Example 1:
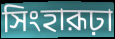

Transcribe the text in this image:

সিংহারূঢ়া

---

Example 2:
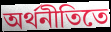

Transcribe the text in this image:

অর্থনীতিতে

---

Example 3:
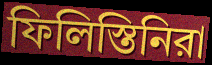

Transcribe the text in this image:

ফিলিস্তিনিরা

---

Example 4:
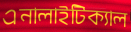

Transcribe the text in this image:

এনালাইটিক্যাল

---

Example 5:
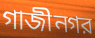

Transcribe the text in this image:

গাজীনগর